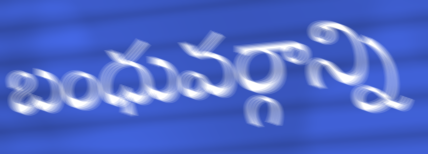
బంధువర్గాన్ని